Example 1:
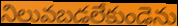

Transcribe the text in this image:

నిలువబడలేకుండెను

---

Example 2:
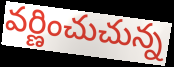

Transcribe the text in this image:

వర్ణించుచున్న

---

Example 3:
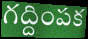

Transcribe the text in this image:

గద్దింపక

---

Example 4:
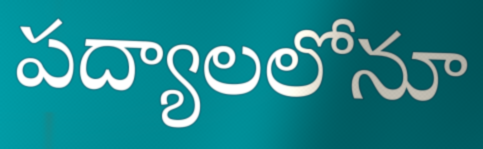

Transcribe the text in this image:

పద్యాలలోనూ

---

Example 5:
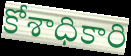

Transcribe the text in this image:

కోశాధికారి